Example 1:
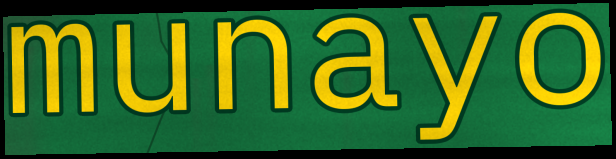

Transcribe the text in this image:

munayo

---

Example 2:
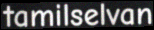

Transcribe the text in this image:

tamilselvan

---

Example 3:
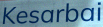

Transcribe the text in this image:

Kesarbai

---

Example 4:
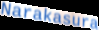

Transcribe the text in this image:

Narakasura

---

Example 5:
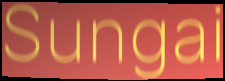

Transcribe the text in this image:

Sungai